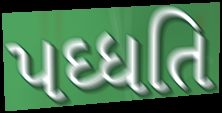
પઘ્ધતિ